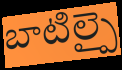
బాటిల్పై